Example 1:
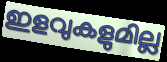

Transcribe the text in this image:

ഇളവുകളുമില്ല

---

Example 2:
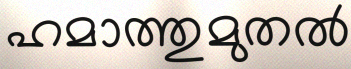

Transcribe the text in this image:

ഹമാത്തുമുതൽ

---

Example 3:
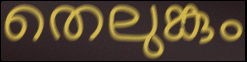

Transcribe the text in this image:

തെലുങ്കും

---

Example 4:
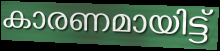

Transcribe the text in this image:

കാരണമായിട്ട്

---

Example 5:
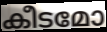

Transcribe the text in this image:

കീടമോ